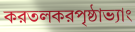
করতলকরপৃষ্ঠাভ্যাং